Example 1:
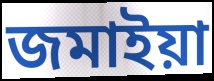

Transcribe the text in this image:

জমাইয়া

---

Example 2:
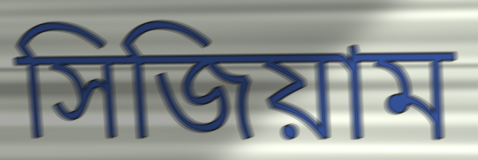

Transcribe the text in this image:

সিজিয়াম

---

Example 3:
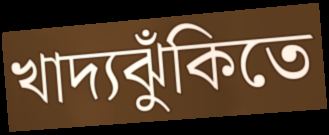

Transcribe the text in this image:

খাদ্যঝুঁকিতে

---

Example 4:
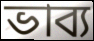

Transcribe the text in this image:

ভাব্য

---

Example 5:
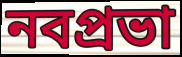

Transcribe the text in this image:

নবপ্রভা